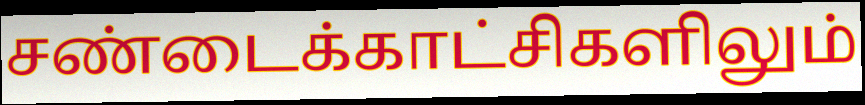
சண்டைக்காட்சிகளிலும்